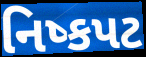
નિષ્કપટ